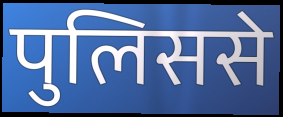
पुलिससे